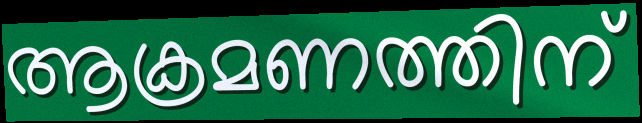
ആക്രമണത്തിന്